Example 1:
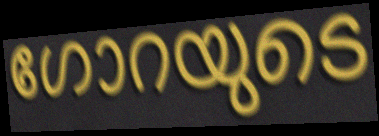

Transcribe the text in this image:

ഗോറയുടെ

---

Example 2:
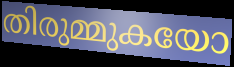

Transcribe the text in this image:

തിരുമ്മുകയോ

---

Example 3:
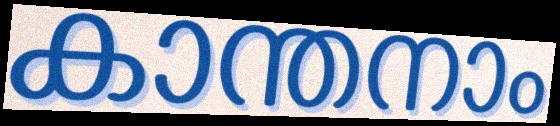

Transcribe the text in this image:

കാന്തനാം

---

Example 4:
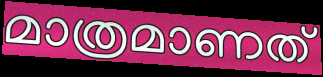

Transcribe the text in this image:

മാത്രമാണത്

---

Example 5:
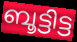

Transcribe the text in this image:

ബൂട്ടിട്ട